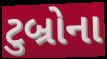
ટુબ્રોના